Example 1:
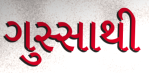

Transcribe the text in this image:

ગુસ્સાથી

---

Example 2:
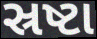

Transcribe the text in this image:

સ્રષ્ટા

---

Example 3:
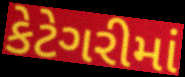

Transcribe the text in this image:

કેટેગરીમાં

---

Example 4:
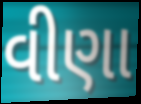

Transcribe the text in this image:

વીણા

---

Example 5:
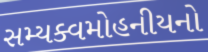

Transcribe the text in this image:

સમ્યક્વમોહનીયનો